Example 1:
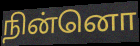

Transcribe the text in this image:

நின்னொ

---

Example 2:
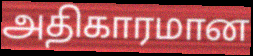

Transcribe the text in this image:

அதிகாரமான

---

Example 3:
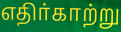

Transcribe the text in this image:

எதிர்காற்று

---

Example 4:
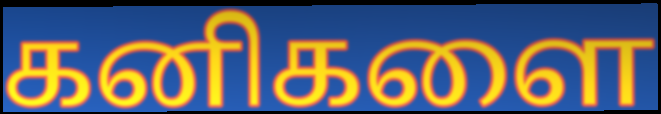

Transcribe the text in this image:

கனிகளை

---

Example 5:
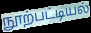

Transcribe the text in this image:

நூற்பட்டியல்